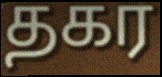
தகர